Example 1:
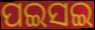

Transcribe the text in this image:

ପଇସଇ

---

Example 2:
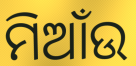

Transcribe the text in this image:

ମିଆଁଉ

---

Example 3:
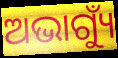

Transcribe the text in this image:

ଅଭାଗ୍ୟୁଁ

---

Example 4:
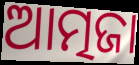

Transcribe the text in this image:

ଆତ୍ମଜା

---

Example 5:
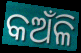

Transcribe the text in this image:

କଅଁଳି